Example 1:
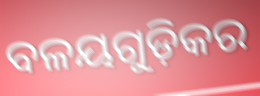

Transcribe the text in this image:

ବଳୟଗୁଡ଼ିକର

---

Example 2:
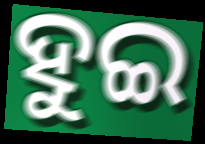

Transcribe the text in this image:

ହୁଇ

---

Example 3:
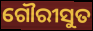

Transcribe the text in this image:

ଗୌରୀସୁତ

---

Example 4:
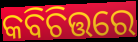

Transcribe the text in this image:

କବିଚିତ୍ତରେ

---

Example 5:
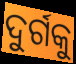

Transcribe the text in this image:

ଦୁର୍ଗକୁ